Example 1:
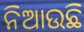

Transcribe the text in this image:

ନିଆଉଛି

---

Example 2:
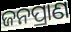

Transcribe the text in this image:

ଜନପ୍ରାଣ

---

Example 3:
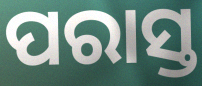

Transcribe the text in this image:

ପରାସ୍ତ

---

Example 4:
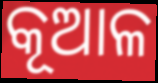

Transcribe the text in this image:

କୂଆଳ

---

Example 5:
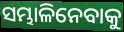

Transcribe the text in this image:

ସମ୍ଭାଳିନେବାକୁ